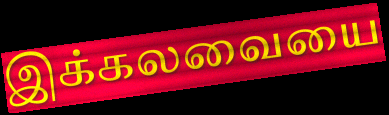
இக்கலவையை